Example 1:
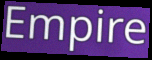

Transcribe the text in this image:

Empire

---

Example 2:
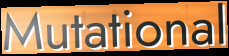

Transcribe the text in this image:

Mutational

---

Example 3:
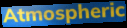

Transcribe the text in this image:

Atmospheric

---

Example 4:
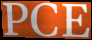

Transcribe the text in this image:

PCE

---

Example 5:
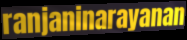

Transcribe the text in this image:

ranjaninarayanan